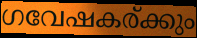
ഗവേഷകര്ക്കും